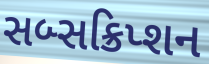
સબ્સક્રિપ્શન